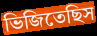
ভিজিতেছিস